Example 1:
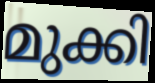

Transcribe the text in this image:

മുക്കി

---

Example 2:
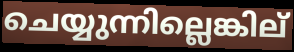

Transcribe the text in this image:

ചെയ്യുന്നില്ലെങ്കില്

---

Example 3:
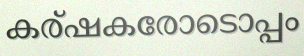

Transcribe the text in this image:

കര്ഷകരോടൊപ്പം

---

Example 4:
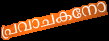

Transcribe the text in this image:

പ്രവാചകനോ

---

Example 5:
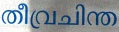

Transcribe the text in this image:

തീവ്രചിന്ത